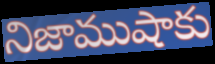
నిజాముషాకు